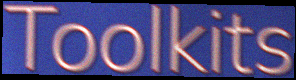
Toolkits